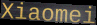
Xiaomei